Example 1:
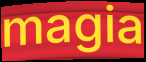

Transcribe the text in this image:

magia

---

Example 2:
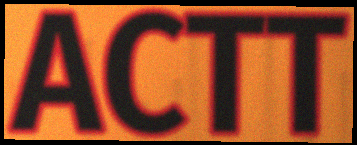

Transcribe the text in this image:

ACTT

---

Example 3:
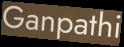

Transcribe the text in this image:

Ganpathi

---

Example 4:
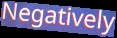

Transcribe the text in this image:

Negatively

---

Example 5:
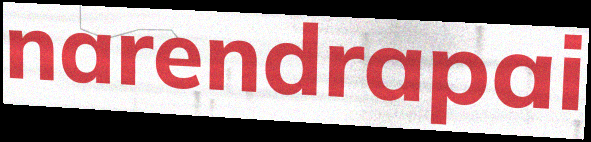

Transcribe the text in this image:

narendrapai